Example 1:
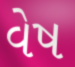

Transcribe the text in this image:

વેષ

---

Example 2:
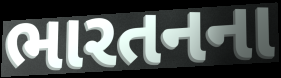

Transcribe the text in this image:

ભારતનના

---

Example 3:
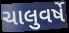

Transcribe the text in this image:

ચાલુવર્ષે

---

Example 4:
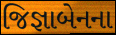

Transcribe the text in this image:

જિજ્ઞાબેનના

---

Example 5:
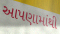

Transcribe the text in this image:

આપણામાંથી